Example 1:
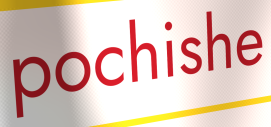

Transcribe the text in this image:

pochishe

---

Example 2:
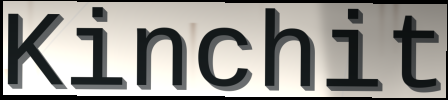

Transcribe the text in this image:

Kinchit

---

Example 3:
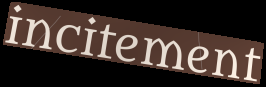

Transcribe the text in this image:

incitement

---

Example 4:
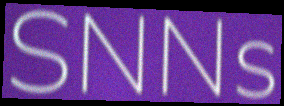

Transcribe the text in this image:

SNNs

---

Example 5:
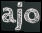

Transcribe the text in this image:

ajo